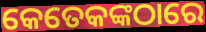
କେତେକଙ୍କଠାରେ